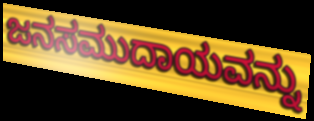
ಜನಸಮುದಾಯವನ್ನು